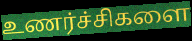
உணர்ச்சிகளை